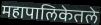
महापालिकेतले